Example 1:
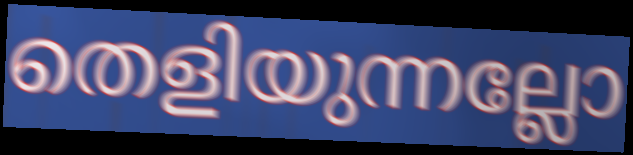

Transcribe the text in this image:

തെളിയുന്നല്ലോ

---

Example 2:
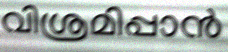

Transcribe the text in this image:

വിശ്രമിപ്പാൻ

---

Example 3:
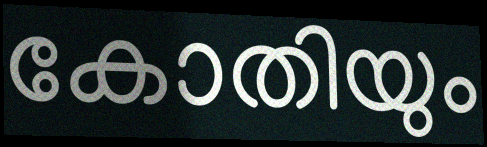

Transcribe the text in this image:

കോതിയും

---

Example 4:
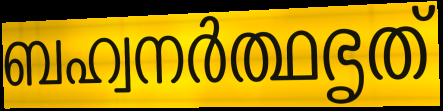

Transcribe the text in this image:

ബഹ്വനർത്ഥഭൃത്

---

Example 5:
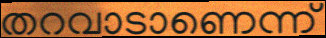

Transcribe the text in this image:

തറവാടാണെന്ന്